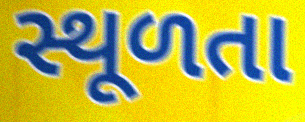
સ્થૂળતા